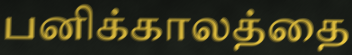
பனிக்காலத்தை